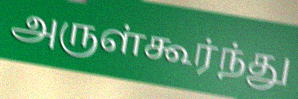
அருள்கூர்ந்து